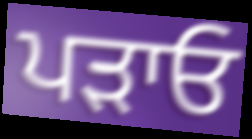
ਪੜਾਓ